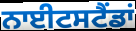
ਨਾਈਟਸਟੈਂਡਾਂ